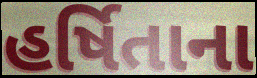
હર્ષિતાના